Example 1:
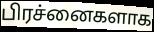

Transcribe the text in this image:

பிரச்னைகளாக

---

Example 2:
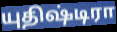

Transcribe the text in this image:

யுதிஷ்டிரா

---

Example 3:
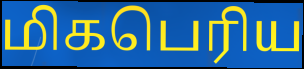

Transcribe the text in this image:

மிகபெரிய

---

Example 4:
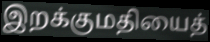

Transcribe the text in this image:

இறக்குமதியைத்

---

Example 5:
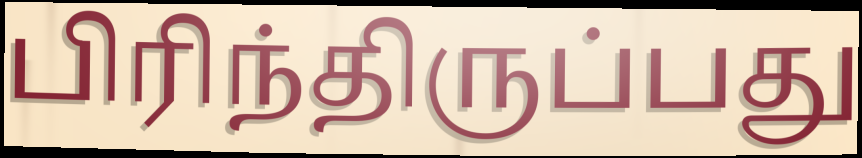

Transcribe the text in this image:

பிரிந்திருப்பது